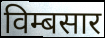
विम्बसार